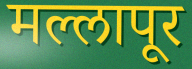
मल्लापूर